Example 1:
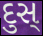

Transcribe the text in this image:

દુસ્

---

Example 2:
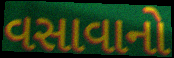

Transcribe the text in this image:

વસાવાનો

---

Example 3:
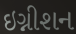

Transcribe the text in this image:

ઇગ્નીશન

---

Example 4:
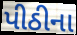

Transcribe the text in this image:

પીઠીના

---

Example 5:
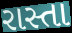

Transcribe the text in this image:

રાસ્તા